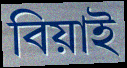
বিয়াই